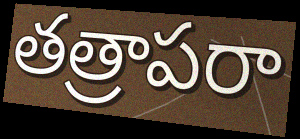
తత్రాపరా